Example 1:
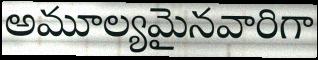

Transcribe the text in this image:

అమూల్యమైనవారిగా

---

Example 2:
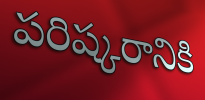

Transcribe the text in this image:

పరిష్కరానికి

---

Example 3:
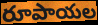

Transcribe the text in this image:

రూపాయల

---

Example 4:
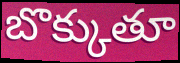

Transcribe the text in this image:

బొక్కుతూ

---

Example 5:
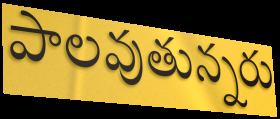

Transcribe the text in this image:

పాలవుతున్నరు